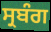
ਸ੍ਰਬੰਗ